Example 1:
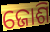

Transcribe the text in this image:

ଜୋଶି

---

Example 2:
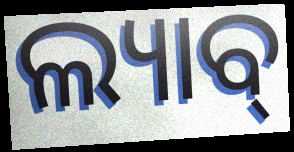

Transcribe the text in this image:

ଲ୍ୟାବ୍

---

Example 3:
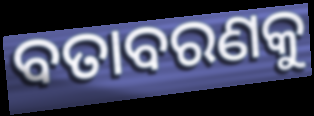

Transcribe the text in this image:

ବତାବରଣକୁ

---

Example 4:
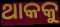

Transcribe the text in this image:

ଥାକକୁ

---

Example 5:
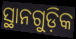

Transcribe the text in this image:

ସ୍ଥାନଗୁଡ଼ିକ